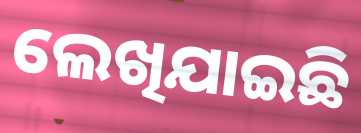
ଲେଖିଯାଇଛି